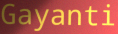
Gayanti